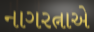
નાગરત્નાએ